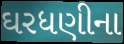
ઘરધણીના